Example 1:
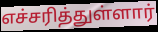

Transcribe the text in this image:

எச்சரித்துள்ளார்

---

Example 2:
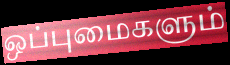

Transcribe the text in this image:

ஒப்புமைகளும்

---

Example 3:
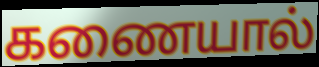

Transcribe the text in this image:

கணையால்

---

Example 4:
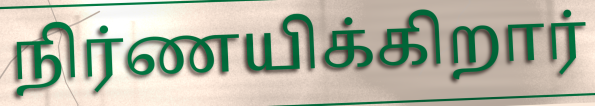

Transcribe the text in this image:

நிர்ணயிக்கிறார்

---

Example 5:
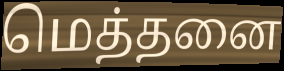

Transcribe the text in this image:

மெத்தனை